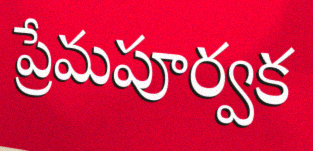
ప్రేమపూర్వక